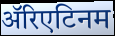
ॲरिएटिनम